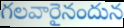
గలవారైనందున